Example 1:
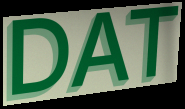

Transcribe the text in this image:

DAT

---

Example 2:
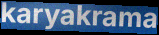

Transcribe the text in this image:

karyakrama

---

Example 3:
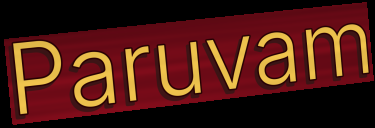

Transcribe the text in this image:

Paruvam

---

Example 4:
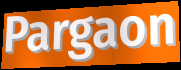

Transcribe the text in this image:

Pargaon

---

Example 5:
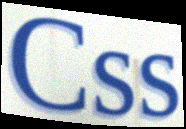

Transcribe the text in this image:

Css